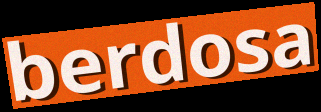
berdosa